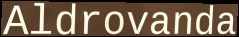
Aldrovanda